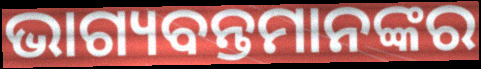
ଭାଗ୍ୟବନ୍ତମାନଙ୍କର